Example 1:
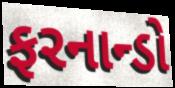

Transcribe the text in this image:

ફરનાન્ડો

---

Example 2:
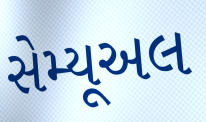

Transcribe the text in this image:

સેમ્યૂઅલ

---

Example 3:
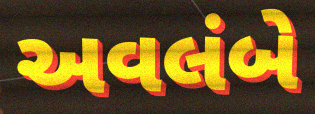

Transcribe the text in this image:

અવલંબે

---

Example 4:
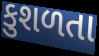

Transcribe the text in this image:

કુશળતા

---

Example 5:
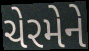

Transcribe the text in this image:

ચેરમેને